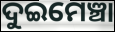
ଦୁଇମେଞ୍ଚା